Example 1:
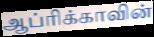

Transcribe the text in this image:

ஆப்ரிக்காவின்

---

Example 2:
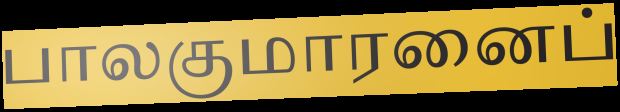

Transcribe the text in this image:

பாலகுமாரனைப்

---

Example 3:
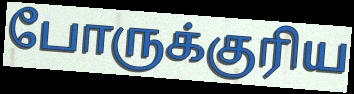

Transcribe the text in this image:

போருக்குரிய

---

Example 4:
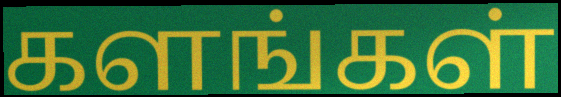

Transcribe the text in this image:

களங்கள்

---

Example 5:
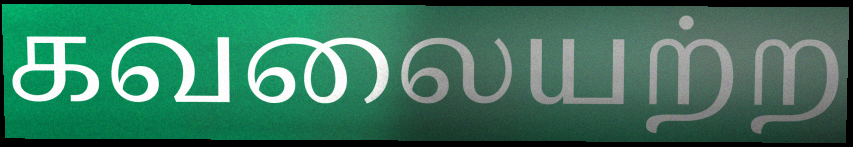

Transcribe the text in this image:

கவலையற்ற